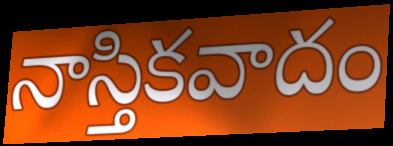
నాస్తికవాదం